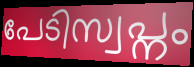
പേടിസ്വപ്നം